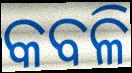
କବଳି